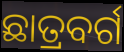
ଛାତ୍ରବର୍ଗ